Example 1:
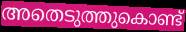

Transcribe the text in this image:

അതെടുത്തുകൊണ്ട്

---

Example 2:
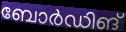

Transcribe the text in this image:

ബോർഡിങ്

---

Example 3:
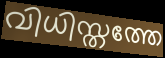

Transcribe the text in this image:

വിധിസ്തത്തേ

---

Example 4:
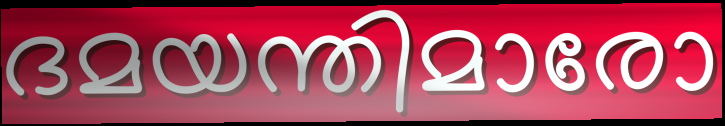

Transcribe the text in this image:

ദമയന്തിമാരോ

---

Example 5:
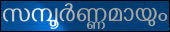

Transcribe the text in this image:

സമ്പൂർണ്ണമായും